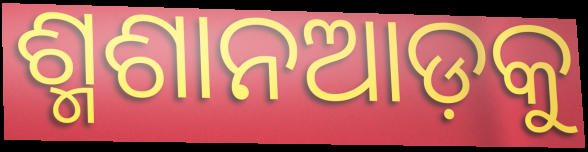
ଶ୍ମଶାନଆଡ଼କୁ